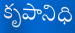
కృపానిధి